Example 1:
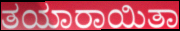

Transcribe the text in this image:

ತಯಾರಾಯಿತಾ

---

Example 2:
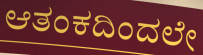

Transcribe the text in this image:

ಆತಂಕದಿಂದಲೇ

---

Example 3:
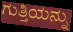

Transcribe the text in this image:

ಗುತ್ತಿಯನ್ನು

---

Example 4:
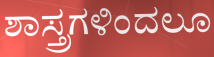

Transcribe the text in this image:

ಶಾಸ್ತ್ರಗಳಿಂದಲೂ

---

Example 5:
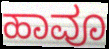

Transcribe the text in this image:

ಹಾವೂ